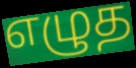
எழுத